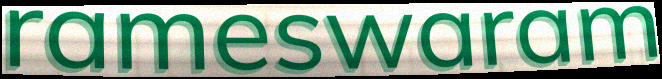
rameswaram